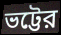
ভট্টের